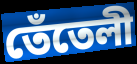
তেঁতেলী